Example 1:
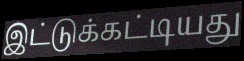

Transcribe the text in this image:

இட்டுக்கட்டியது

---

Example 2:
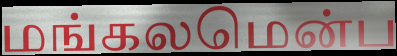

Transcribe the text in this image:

மங்கலமென்ப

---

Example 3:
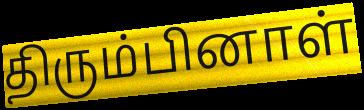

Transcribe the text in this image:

திரும்பினாள்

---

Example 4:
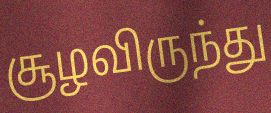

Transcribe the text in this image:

சூழவிருந்து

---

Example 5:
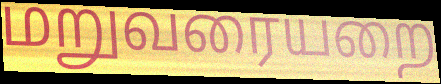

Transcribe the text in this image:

மறுவரையறை